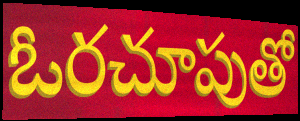
ఓరచూపుతో